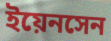
ইয়েনসেন